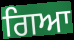
ਗਿਆ